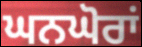
ਘਨਘੋਰਾਂ